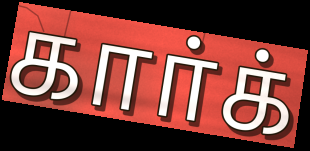
கார்க்